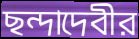
ছন্দাদেবীর